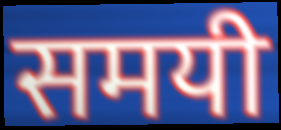
समयी